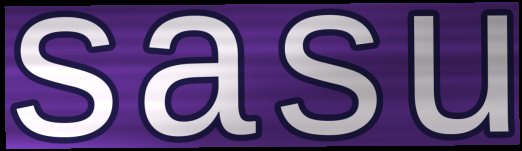
sasu